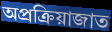
অপ্রক্রিয়াজাত